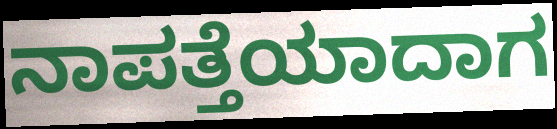
ನಾಪತ್ತೆಯಾದಾಗ